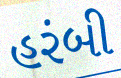
હરંબી